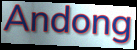
Andong